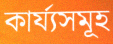
কাৰ্য্যসমূহ